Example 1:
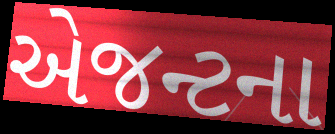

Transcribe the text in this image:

એજન્ટના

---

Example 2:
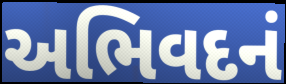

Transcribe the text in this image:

અભિવદનં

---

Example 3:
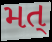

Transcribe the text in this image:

મત્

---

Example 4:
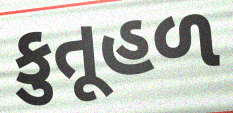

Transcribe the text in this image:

કુતૂહળ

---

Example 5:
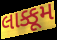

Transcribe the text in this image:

લાક્કૂમ